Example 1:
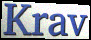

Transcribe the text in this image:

Krav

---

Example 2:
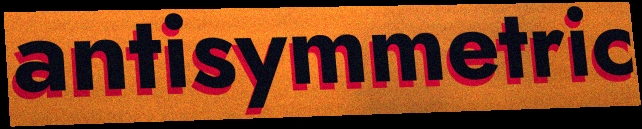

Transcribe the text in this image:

antisymmetric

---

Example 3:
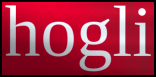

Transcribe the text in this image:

hogli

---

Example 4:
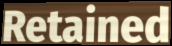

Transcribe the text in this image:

Retained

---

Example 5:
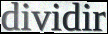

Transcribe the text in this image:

dividir